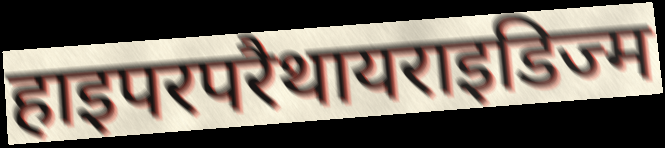
हाइपरपरैथायराइडिज्म